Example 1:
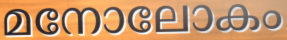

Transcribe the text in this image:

മനോലോകം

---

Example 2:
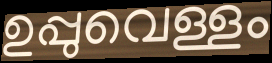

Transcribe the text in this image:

ഉപ്പുവെള്ളം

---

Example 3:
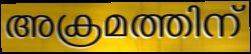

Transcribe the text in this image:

അക്രമത്തിന്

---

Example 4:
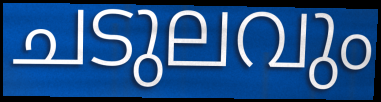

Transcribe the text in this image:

ചടുലവും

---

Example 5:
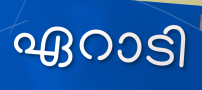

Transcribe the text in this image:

ഏറാടി